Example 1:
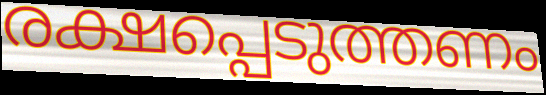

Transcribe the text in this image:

രക്ഷപ്പെടുത്തണം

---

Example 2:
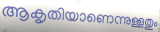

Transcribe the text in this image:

ആകൃതിയാണെന്നുള്ളതും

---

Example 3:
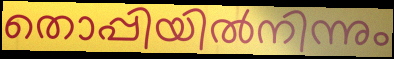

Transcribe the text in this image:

തൊപ്പിയിൽനിന്നും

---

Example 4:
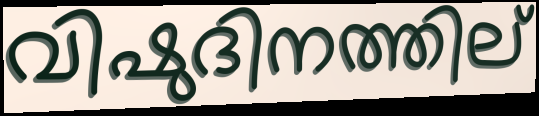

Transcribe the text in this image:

വിഷുദിനത്തില്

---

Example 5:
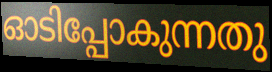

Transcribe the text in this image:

ഓടിപ്പോകുന്നതു